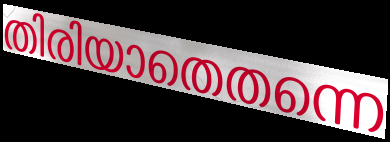
തിരിയാതെതന്നെ